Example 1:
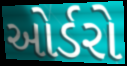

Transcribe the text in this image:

ઓર્ડરો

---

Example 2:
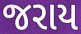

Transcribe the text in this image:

જરાય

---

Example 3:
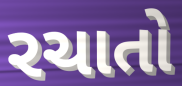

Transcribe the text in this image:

રચાતો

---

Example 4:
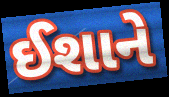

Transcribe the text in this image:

ઈશાને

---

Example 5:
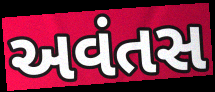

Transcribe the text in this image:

અવંતસ